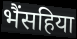
भैंसहिया